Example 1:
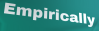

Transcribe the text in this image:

Empirically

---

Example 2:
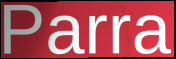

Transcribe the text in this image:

Parra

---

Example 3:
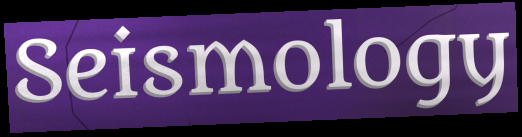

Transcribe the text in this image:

Seismology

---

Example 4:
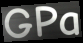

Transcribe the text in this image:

GPa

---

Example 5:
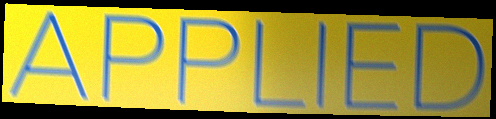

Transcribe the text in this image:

APPLIED